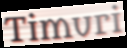
Timuri